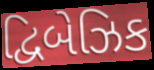
દ્વિબેઝિક